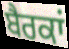
ਬੈਰਕਾਂ